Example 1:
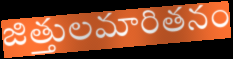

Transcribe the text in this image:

జిత్తులమారితనం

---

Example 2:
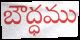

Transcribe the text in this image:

బౌద్ధము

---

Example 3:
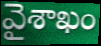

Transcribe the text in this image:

వైశాఖం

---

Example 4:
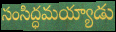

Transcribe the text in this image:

సంసిద్ధమయ్యాడు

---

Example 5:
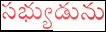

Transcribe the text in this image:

సభ్యుడును